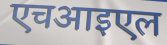
एचआइएल